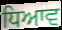
ਧਿਆਵ